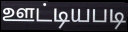
ஊட்டியபடி